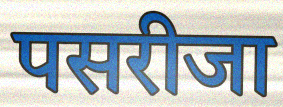
पसरीजा